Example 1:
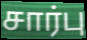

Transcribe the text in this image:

சார்பு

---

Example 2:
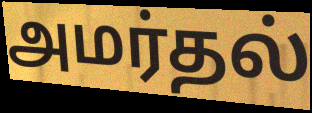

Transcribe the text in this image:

அமர்தல்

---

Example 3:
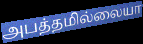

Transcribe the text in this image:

அபத்தமில்லையா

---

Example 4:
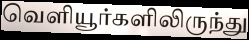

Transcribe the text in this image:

வெளியூர்களிலிருந்து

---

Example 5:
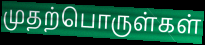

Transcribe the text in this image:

முதற்பொருள்கள்